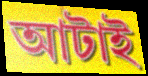
আটাই